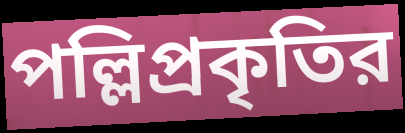
পল্লিপ্রকৃতির